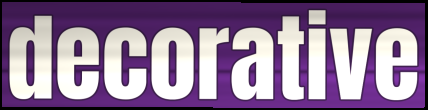
decorative